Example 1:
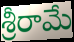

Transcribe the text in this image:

శ్రీరామే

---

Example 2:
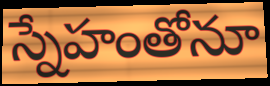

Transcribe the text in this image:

స్నేహంతోనూ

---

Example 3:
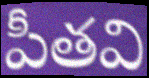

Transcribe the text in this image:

పీతవి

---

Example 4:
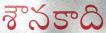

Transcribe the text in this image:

శౌనకాది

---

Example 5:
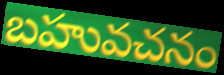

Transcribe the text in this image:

బహువచనం